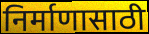
निर्माणासाठी